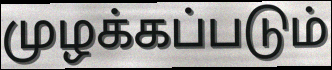
முழக்கப்படும்